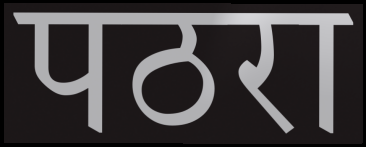
पठरा